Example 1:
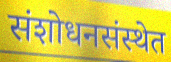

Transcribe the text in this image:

संशोधनसंस्थेत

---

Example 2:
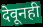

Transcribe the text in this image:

देवूनही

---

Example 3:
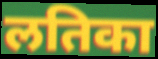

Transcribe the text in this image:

लतिका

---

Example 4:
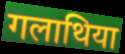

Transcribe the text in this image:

गलाथिया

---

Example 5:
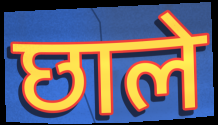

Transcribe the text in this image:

छाले